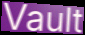
Vault